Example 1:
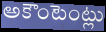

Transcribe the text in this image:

అకౌంటెంట్లు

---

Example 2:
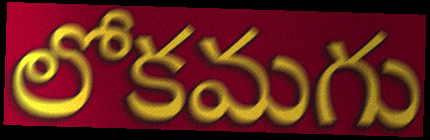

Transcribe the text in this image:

లోకమగు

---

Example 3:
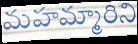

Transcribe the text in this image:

మహమ్మారిని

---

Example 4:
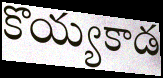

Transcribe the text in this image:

కొయ్యకాడ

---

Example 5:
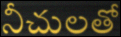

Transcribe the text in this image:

నీచులతో